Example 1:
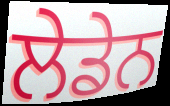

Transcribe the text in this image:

ਲੇਡੇਨ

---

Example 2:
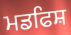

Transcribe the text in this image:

ਮਡਫਿਸ਼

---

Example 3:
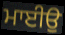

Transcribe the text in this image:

ਮਾਈਉ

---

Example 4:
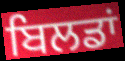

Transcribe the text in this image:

ਬਿਲਡਾਂ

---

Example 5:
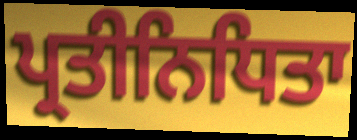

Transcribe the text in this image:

ਪ੍ਰਤੀਨਿਧਿਤਾ